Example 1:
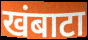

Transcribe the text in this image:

खंबाटा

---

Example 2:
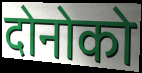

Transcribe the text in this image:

दोनोको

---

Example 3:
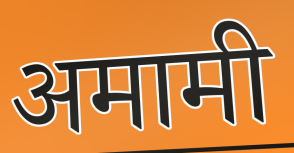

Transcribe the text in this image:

अमामी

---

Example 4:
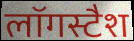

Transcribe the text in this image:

लॉगस्टैश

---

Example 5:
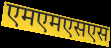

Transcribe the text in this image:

एमएमएसएस